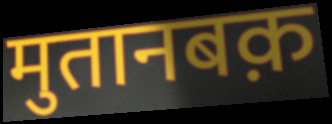
मुतानबक़